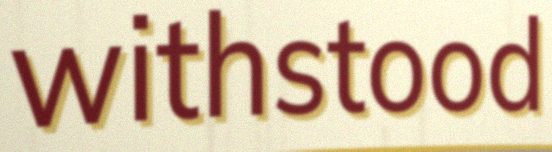
withstood